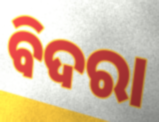
ବିଦରା